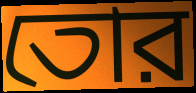
তোর